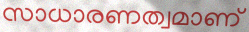
സാധാരണത്വമാണ്